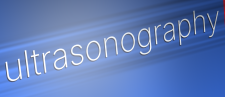
ultrasonography